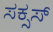
ಸಕ್ಸಸ್